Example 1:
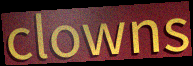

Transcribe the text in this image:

clowns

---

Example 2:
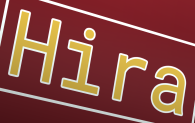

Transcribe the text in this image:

Hira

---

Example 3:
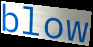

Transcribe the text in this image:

blow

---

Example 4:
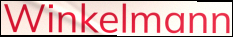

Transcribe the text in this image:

Winkelmann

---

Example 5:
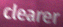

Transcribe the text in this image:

clearer